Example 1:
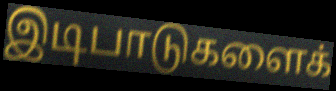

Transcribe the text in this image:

இடிபாடுகளைக்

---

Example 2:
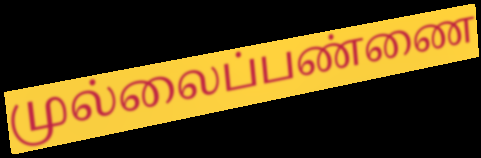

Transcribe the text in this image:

முல்லைப்பண்ணை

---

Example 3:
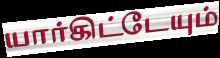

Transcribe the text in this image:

யார்கிட்டேயும்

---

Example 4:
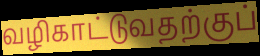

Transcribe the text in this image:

வழிகாட்டுவதற்குப்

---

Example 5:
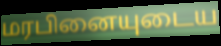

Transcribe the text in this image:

மரபினையுடைய